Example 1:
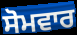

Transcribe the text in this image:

ਸੋਮਵਾਰ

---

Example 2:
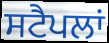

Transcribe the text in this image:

ਸਟੈਪਲਾਂ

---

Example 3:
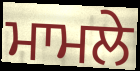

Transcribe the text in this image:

ਮਾਮਲੇ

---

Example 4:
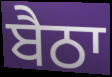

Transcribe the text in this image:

ਬੈਠਾ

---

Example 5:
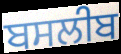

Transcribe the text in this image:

ਬਸਲੀਬ